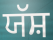
ਯੱਸ਼